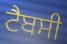
ਟੈਬਸੀ